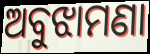
ଅବୁଝାମଣା